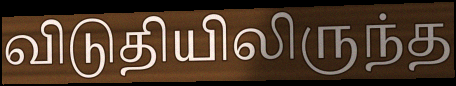
விடுதியிலிருந்த